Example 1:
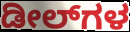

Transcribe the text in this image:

ಡೀಲ್‌ಗಳ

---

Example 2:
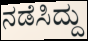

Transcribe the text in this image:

ನಡೆಸಿದ್ದು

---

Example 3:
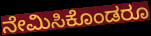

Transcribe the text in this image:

ನೇಮಿಸಿಕೊಂಡರೂ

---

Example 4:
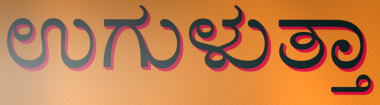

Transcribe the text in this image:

ಉಗುಳುತ್ತಾ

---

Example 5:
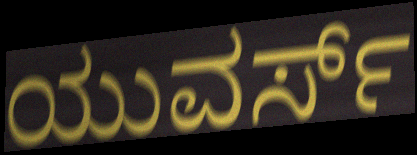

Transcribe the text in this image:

ಯುವರ್ಸ್